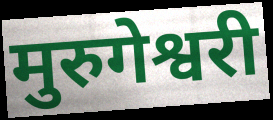
मुरुगेश्वरी